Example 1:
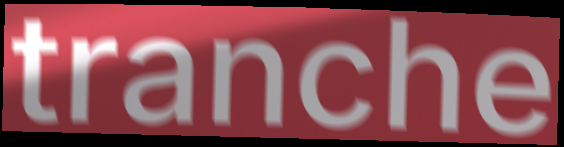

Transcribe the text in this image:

tranche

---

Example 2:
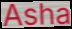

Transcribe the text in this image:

Asha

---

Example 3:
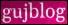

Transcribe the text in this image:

gujblog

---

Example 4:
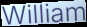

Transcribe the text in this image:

William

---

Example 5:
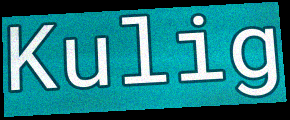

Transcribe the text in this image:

Kulig